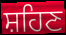
ਸ਼ਹਿਣ